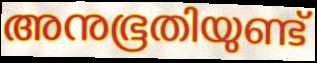
അനുഭൂതിയുണ്ട്